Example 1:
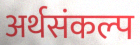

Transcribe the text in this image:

अर्थसंकल्प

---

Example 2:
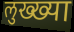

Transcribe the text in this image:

लुख्ख्या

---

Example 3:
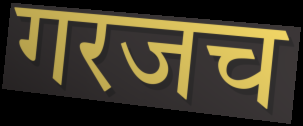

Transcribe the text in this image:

गरजच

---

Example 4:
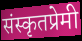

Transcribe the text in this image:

संस्कृतप्रेमी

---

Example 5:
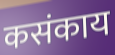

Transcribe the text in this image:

कसंकाय